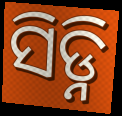
ସିଡ୍ନି